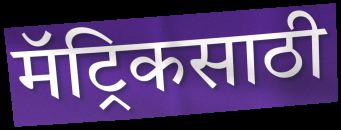
मॅट्रिकसाठी